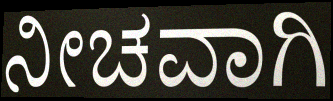
ನೀಚವಾಗಿ